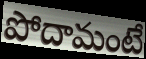
పోదామంటే